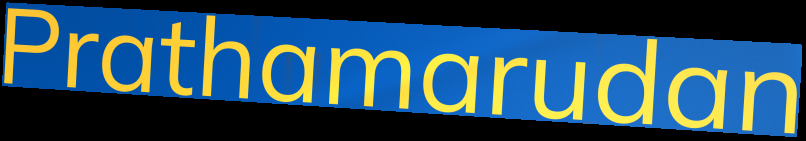
Prathamarudan